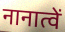
नानात्वें